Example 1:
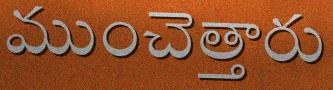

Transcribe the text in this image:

ముంచెత్తారు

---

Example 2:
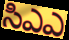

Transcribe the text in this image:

సిఎఎ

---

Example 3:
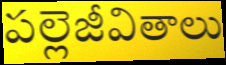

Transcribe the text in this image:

పల్లెజీవితాలు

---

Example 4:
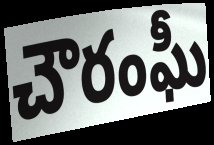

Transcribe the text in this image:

చౌరంఘీ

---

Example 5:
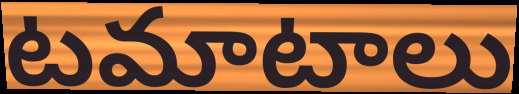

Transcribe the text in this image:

టమాటాలు